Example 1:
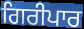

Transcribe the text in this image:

ਗਿਰੀਪਾਰ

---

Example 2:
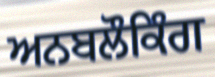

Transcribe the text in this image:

ਅਨਬਲੌਕਿੰਗ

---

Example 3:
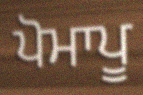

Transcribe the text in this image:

ਪੋਮਾਪੂ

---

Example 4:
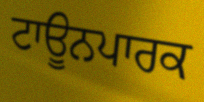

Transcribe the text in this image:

ਟਾਊਨਪਾਰਕ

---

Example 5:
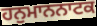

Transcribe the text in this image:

ਹਨੁਮਾਨਨਾਟਕ